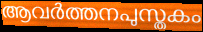
ആവർത്തനപുസ്തകം